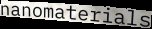
nanomaterials